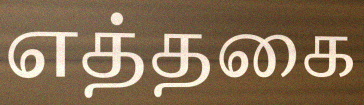
எத்தகை